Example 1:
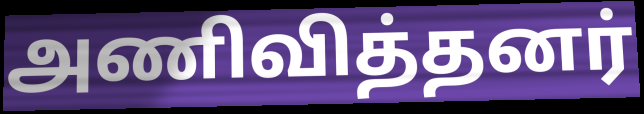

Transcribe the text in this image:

அணிவித்தனர்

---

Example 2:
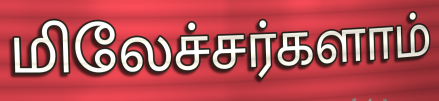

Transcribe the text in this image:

மிலேச்சர்களாம்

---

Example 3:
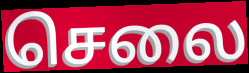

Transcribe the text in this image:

செலை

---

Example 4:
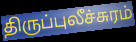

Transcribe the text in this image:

திருப்புலீச்சுரம்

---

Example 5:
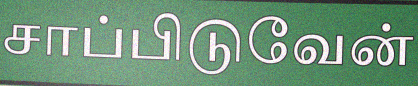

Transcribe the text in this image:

சாப்பிடுவேன்